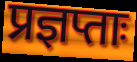
प्रज्ञप्ताः